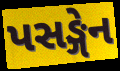
પસઙ્ગેન